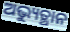
ଅଭ୍ୟୁତ୍ଥାନ